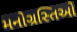
મનોગ્રસ્તિઓ